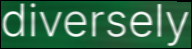
diversely